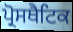
ਪ੍ਰੋਸਥੈਟਿਕ